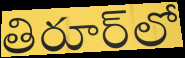
తిరూర్‌లో